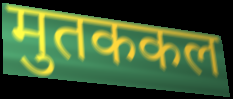
मुतककल